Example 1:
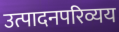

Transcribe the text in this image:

उत्पादनपरिव्यय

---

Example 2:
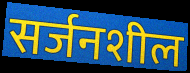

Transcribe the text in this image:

सर्जनशील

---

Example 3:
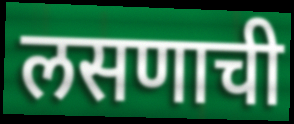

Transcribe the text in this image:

लसणाची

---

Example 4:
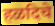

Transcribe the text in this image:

हळदिचे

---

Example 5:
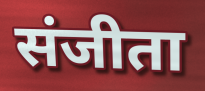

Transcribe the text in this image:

संजीता